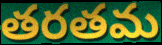
తరతమ